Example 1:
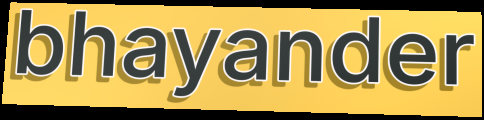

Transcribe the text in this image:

bhayander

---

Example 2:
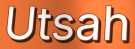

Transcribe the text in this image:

Utsah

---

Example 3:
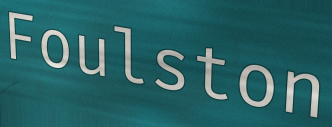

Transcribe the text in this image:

Foulston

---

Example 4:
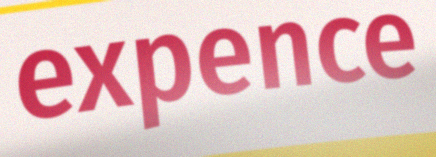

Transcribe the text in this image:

expence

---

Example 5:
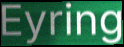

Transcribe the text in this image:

Eyring